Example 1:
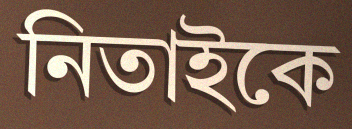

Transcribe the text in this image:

নিতাইকে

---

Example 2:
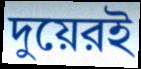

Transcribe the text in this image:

দুয়েরই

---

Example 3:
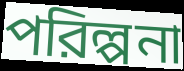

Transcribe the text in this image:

পরিল্পনা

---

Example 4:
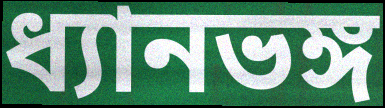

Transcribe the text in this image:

ধ্যানভঙ্গ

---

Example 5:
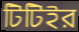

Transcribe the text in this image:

টিটিইর